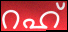
റഹ്